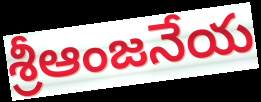
శ్రీఆంజనేయ